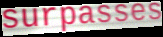
surpasses